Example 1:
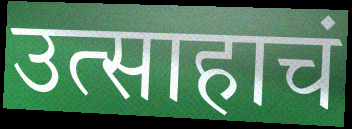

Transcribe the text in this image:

उत्साहाचं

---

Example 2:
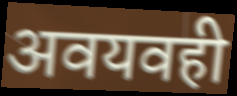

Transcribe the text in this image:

अवयवही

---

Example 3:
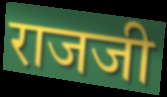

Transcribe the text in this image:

राजजी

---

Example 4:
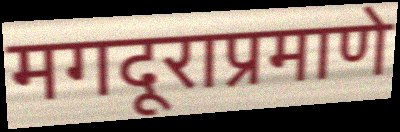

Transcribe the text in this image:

मगदूराप्रमाणे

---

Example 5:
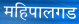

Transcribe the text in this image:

महिपालगड